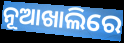
ନୂଆଖାଲିରେ